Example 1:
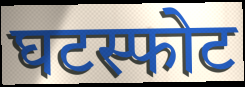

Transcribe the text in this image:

घटस्फोट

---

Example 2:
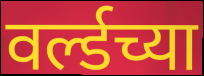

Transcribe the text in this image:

वर्ल्डच्या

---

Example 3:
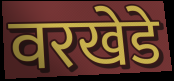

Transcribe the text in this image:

वरखेडे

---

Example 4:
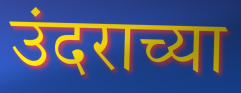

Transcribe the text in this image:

उंदराच्या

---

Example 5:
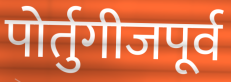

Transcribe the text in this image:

पोर्तुगीजपूर्व